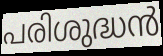
പരിശുദ്ധൻ